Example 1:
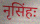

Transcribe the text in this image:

नृसिंहः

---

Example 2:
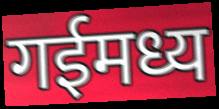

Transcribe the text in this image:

गईमध्य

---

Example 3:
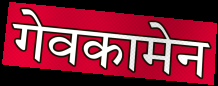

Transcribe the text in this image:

गेवकामेन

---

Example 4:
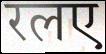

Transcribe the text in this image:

रलए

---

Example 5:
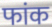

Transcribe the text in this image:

फांक